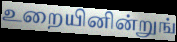
உறையினின்றுங்